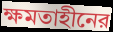
ক্ষমতাহীনের